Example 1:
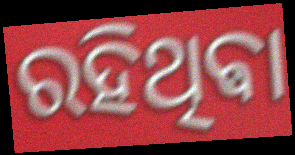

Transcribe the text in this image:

ରହିଥିଵା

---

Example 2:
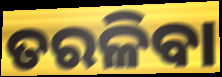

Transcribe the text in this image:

ତରଳିବା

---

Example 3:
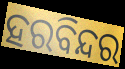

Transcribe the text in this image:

ହରବିନ୍ଦର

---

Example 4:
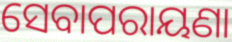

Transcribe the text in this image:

ସେବାପରାୟଣା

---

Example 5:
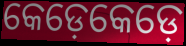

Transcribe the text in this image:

କେଡ଼େକେଡ଼େ